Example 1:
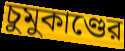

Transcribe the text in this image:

চুমুকাণ্ডের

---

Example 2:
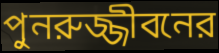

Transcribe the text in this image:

পুনরুজ্জীবনের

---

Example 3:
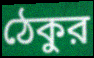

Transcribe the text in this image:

ঠেকুর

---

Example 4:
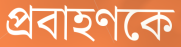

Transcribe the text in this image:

প্রবাহণকে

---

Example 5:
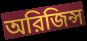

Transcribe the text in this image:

অরিজিন্স